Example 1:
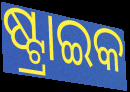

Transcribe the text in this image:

ଷ୍ଟ୍ରାଇକ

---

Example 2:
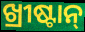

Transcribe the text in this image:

ଖ୍ରୀଷ୍ଟାନ୍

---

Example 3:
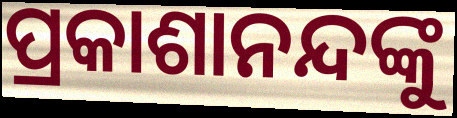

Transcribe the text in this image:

ପ୍ରକାଶାନନ୍ଦଙ୍କୁ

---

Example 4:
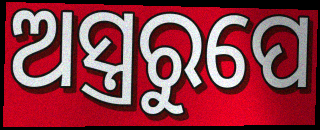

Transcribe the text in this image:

ଅସ୍ତ୍ରରୁପେ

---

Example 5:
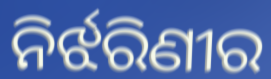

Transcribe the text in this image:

ନିର୍ଝରିଣୀର